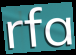
rfa